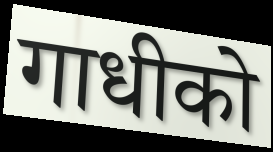
गाधीको